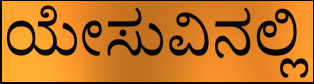
ಯೇಸುವಿನಲ್ಲಿ